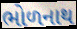
ભોળનાથ